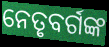
ନେତୃବର୍ଗଙ୍କ